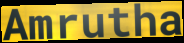
Amrutha